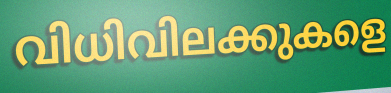
വിധിവിലക്കുകളെ